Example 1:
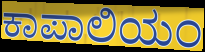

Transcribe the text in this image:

ಕಾಪಾಲಿಯಂ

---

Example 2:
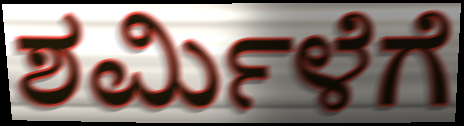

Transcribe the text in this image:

ಶರ್ಮಿಳೆಗೆ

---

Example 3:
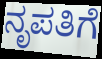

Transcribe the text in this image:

ನೃಪತಿಗೆ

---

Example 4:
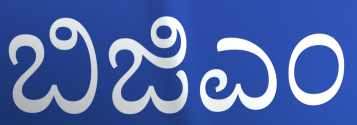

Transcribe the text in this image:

ಬಿಜಿಎಂ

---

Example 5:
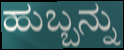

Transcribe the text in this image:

ಹುಬ್ಬನ್ನು